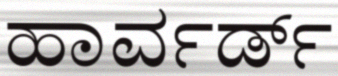
ಹಾರ್ವರ್ಡ್